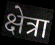
क्षेत्रा